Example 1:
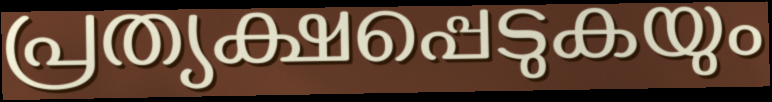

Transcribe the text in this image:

പ്രത്യക്ഷപ്പെടുകയും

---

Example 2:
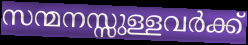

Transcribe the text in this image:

സന്മനസ്സുള്ളവർക്ക്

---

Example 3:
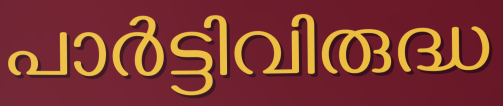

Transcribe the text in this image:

പാർട്ടിവിരുദ്ധ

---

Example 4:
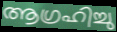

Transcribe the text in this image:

ആഗ്രഹിച്ചു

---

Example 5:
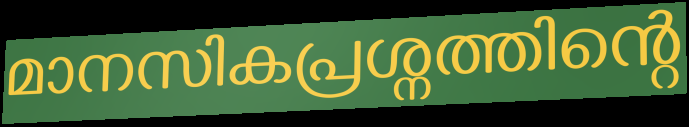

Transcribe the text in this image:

മാനസികപ്രശ്നത്തിന്റെ